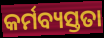
କର୍ମବ୍ୟସ୍ତତା